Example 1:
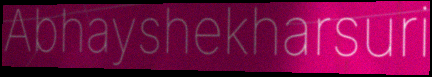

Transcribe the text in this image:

Abhayshekharsuri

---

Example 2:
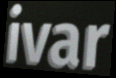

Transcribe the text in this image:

ivar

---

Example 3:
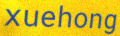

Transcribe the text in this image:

xuehong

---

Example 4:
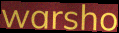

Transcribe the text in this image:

warsho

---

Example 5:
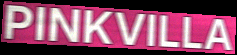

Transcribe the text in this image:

PINKVILLA